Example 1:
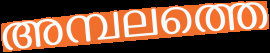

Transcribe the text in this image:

അമ്പലത്തെ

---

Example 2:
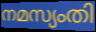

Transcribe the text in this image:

നമസ്യംതി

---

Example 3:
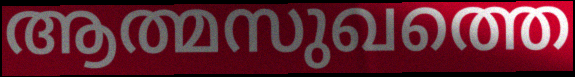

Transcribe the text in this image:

ആത്മസുഖത്തെ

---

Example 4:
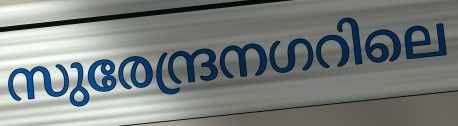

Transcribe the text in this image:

സുരേന്ദ്രനഗറിലെ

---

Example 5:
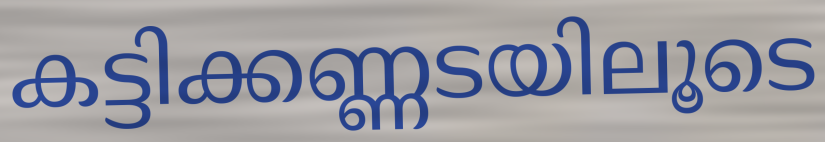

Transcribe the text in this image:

കട്ടിക്കണ്ണടയിലൂടെ